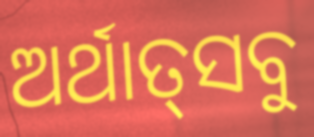
ଅର୍ଥାତ୍‌ସବୁ